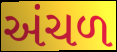
અંચળ